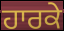
ਹਾਰਕੇ